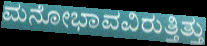
ಮನೋಭಾವವಿರುತ್ತಿತ್ತು